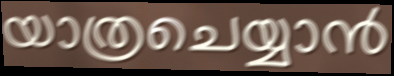
യാത്രചെയ്യാൻ